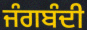
ਜੰਗਬੰਦੀ